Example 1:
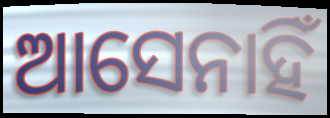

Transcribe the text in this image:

ଆସେନାହିଁ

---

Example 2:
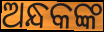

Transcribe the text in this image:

ଅନ୍ଧକଙ୍କ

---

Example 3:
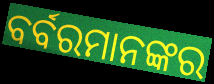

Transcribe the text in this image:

ବର୍ବରମାନଙ୍କର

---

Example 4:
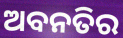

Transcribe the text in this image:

ଅବନତିର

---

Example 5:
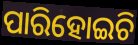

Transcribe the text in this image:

ପାରିହୋଇଚି